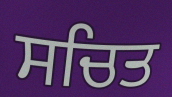
ਸਚਿਤ